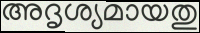
അദൃശ്യമായതു